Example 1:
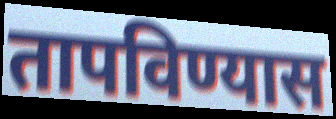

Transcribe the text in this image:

तापविण्यास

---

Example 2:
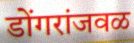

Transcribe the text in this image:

डोंगरांजवळ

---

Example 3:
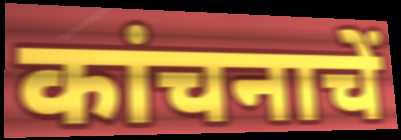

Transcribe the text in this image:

कांचनाचें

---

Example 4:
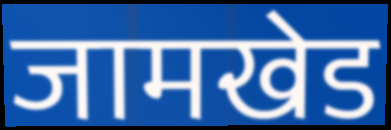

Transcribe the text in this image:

जामखेड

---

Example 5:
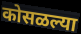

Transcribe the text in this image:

कोसळल्या